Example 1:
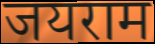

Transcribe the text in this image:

जयराम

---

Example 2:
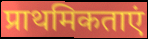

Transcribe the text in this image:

प्राथमिकताएं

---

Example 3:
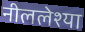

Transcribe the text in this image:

नीललेश्या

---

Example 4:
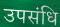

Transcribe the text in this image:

उपसंधि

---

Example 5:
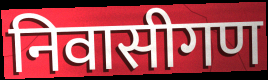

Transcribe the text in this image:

निवासीगण